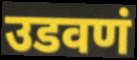
उडवणं